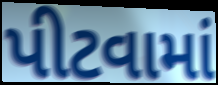
પીટવામાં